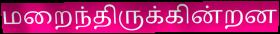
மறைந்திருக்கின்றன